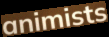
animists